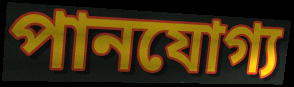
পানযোগ্য